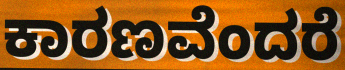
ಕಾರಣವೆಂದರೆ